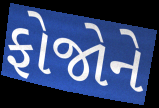
ફોજોને